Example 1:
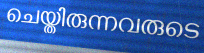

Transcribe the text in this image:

ചെയ്തിരുന്നവരുടെ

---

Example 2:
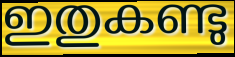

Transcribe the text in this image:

ഇതുകണ്ടു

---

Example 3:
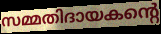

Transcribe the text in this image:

സമ്മതിദായകന്റെ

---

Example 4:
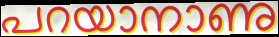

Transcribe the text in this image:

പറയാനാണു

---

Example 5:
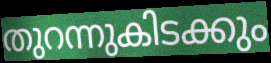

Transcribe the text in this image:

തുറന്നുകിടക്കും